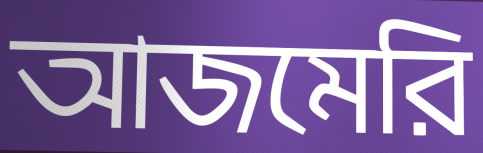
আজমেরি